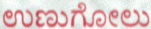
ಉಣುಗೋಲು